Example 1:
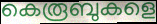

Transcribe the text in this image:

കെരൂബുകളെ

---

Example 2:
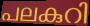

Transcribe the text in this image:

പലകുറി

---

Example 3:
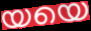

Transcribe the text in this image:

യയെ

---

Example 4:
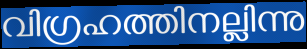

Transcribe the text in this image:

വിഗ്രഹത്തിനല്ലിന്നു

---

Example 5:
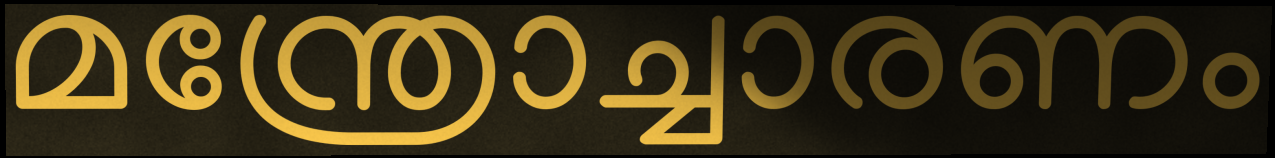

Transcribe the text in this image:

മന്ത്രോച്ചാരണം